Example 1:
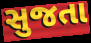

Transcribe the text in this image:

સુજતા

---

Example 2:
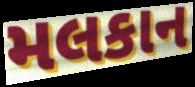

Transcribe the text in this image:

મલકાન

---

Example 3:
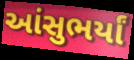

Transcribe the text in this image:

આંસુભર્યાં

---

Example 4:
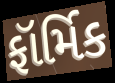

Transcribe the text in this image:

ફૉર્મિક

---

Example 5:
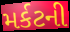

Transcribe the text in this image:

મર્કટની